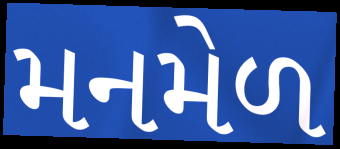
મનમેળ